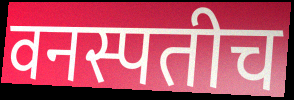
वनस्पतीच